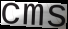
cms